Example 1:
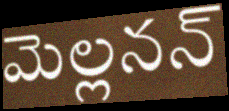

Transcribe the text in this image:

మెల్లనన్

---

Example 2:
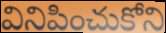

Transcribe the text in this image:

వినిపించుకోని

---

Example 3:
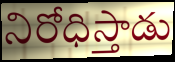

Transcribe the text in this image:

నిరోధిస్తాడు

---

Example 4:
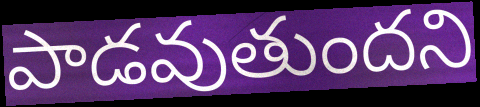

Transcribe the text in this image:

పాడవుతుందని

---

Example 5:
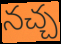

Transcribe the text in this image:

నచ్చ